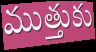
ముత్తుకు